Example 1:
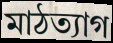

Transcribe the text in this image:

মাঠত্যাগ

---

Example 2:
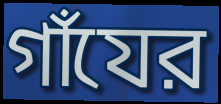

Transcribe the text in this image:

গাঁযের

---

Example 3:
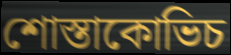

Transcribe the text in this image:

শোস্তাকোভিচ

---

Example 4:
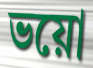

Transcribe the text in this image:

ভয়ো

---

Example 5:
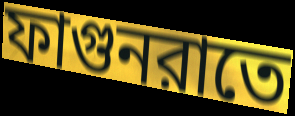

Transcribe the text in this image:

ফাগুনরাতে